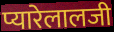
प्यारेलालजी